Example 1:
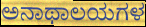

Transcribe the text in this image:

ಅನಾಥಾಲಯಗಳ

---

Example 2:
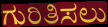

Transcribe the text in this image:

ಗುರಿತಿಸಲು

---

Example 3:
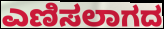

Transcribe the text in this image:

ಎಣಿಸಲಾಗದ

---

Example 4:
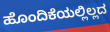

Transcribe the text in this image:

ಹೊಂದಿಕೆಯಲ್ಲಿಲ್ಲದ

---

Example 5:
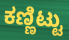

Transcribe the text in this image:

ಕಣ್ಣಿಟ್ಟು